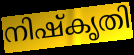
നിഷ്കൃതി